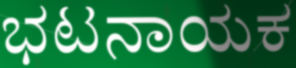
ಭಟನಾಯಕ